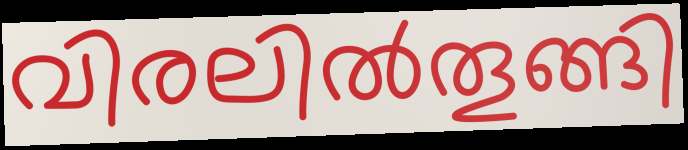
വിരലിൽതൂങ്ങി